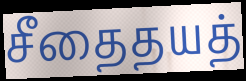
சீதைதயத்